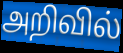
அறிவில்